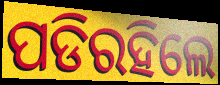
ପଡିରହିଲେ